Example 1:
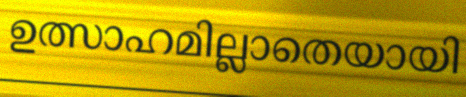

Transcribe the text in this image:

ഉത്സാഹമില്ലാതെയായി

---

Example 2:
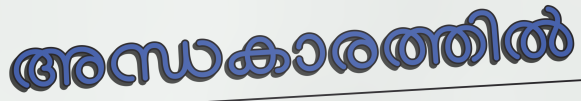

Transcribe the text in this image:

അന്ധകാരത്തിൽ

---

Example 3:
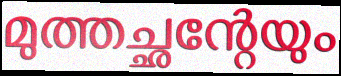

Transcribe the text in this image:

മുത്തച്ഛന്റേയും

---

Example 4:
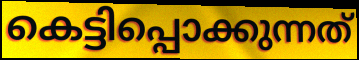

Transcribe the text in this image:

കെട്ടിപ്പൊക്കുന്നത്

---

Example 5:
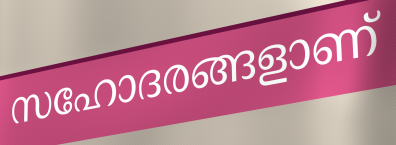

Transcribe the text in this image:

സഹോദരങ്ങളാണ്